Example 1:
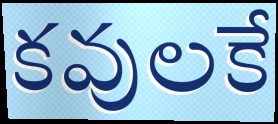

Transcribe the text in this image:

కవులకే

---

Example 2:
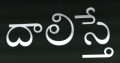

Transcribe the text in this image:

దాలిస్తే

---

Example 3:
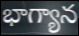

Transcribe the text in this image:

భాగ్యాన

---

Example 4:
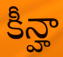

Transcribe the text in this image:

కీన్హా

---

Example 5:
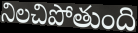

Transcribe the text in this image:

నిలచిపోతుంది